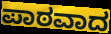
ಪಾಠವಾದ